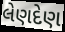
લેણદેણ